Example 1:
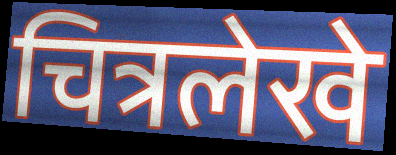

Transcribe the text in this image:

चित्रलेखे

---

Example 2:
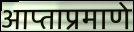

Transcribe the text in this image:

आप्ताप्रमाणे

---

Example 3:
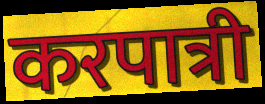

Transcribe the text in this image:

करपात्री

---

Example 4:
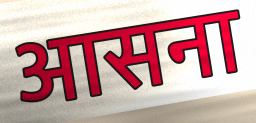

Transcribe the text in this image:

आसना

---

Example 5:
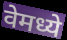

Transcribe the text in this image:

वेमध्ये